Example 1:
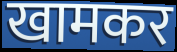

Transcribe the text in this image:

खामकर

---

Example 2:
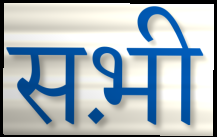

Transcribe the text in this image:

सभ़ी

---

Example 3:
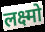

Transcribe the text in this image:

लक्ष्मो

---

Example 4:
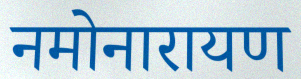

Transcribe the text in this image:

नमोनारायण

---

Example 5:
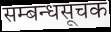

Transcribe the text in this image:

सम्बन्धसूचक